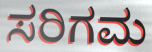
ಸರಿಗಮ